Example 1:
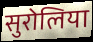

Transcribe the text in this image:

सुरोलिया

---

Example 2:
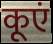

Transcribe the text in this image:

कूएं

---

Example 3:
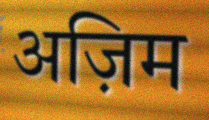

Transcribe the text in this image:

अज़िम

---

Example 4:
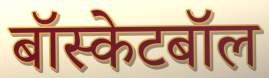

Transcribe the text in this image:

बॉस्केटबॉल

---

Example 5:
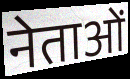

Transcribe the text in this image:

नेताओं